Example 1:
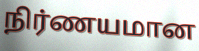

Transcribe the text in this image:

நிர்ணயமான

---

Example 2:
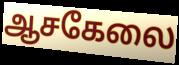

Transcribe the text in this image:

ஆசகேலை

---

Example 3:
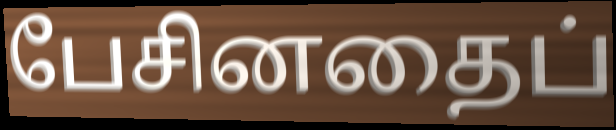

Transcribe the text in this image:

பேசினதைப்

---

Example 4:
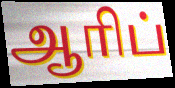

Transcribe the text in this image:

ஆரிப்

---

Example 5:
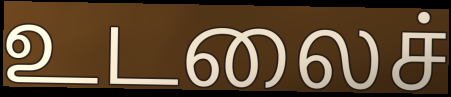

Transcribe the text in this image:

உடலைச்